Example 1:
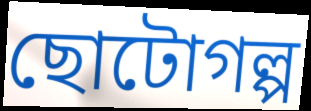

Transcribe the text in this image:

ছোটোগল্প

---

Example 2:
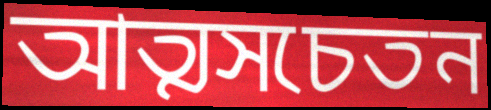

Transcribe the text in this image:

আত্মসচেতন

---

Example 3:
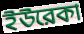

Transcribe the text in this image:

ইউরেকা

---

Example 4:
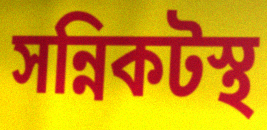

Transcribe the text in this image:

সন্নিকটস্থ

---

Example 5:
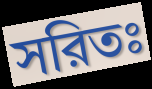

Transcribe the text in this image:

সরিতঃ